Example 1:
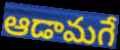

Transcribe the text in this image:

ఆడామగే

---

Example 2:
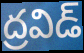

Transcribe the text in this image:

ద్రవిడ్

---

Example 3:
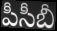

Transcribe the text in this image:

పీసీబీ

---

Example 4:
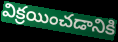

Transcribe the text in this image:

విక్రయించడానికి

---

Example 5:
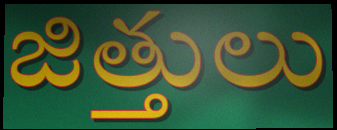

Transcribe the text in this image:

జిత్తులు